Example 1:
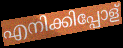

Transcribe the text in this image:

എനിക്കിപ്പോള്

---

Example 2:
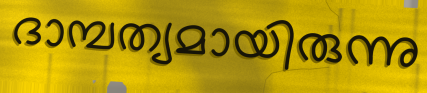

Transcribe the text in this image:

ദാമ്പത്യമായിരുന്നു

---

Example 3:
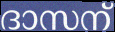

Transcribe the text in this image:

ദാസന്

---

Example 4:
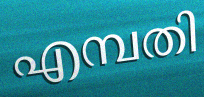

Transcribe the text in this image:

എമ്പതി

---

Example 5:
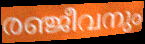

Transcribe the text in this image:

രഞ്ജീവനും